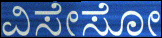
ವಿಸೇಸೋ